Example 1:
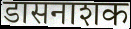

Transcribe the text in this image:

डासनाशक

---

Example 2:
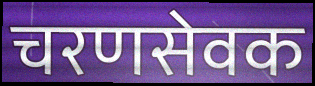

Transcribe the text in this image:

चरणसेवक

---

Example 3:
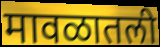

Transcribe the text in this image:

मावळातली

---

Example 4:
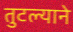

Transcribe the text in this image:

तुटल्याने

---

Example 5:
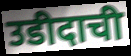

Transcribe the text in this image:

उडीदाची